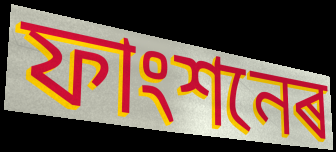
ফাংশনেৰ